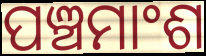
ପଞ୍ଚମାଂଶ